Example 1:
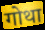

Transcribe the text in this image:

गोथा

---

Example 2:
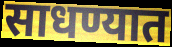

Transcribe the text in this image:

साधण्यात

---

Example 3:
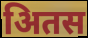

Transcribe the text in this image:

अितस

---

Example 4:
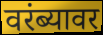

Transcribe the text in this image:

वरंब्यावर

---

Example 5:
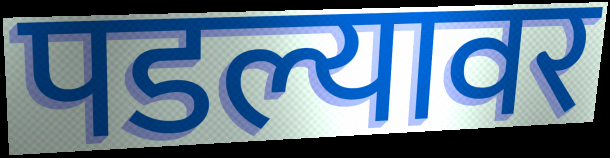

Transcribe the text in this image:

पडल्यावर